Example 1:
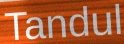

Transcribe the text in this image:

Tandul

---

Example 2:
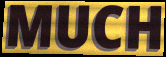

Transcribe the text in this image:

MUCH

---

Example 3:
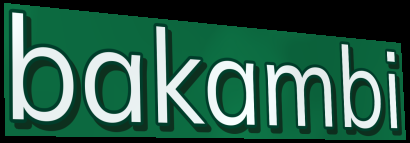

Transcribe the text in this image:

bakambi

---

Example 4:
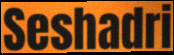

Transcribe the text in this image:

Seshadri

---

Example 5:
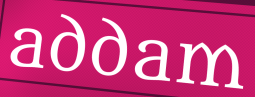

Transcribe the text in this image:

addam